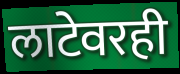
लाटेवरही